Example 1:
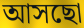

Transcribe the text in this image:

আসছো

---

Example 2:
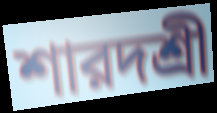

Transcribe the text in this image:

শারদশ্রী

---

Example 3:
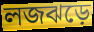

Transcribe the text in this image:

লজঝড়ে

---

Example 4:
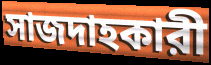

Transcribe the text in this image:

সাজদাহকারী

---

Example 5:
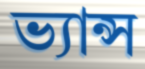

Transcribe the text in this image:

ভ্যান্স